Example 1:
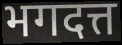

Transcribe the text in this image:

भगदत्त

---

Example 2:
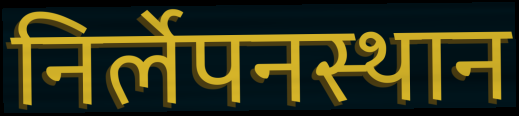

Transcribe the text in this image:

निर्लेपनस्थान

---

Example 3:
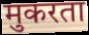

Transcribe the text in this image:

मुकरता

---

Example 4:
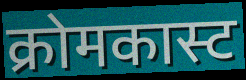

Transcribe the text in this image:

क्रोमकास्ट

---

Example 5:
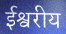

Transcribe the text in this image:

ईश्वरीय